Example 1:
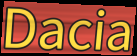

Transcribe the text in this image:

Dacia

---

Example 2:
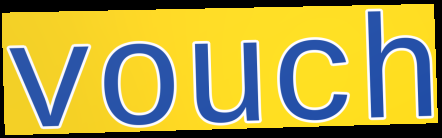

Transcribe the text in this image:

vouch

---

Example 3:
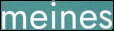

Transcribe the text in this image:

meines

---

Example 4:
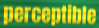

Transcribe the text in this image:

perceptible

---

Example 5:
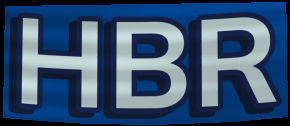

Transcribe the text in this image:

HBR